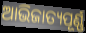
ଆଭିଜାତ୍ୟପୂର୍ଣ୍ଣ